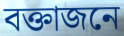
বক্তাজনে